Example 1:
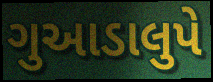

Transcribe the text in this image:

ગુઆડાલુપે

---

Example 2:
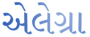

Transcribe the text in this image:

એલેગ્રા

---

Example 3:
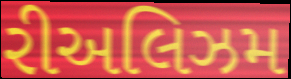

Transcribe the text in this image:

રીઅલિઝમ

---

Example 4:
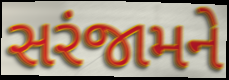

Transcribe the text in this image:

સરંજામને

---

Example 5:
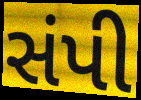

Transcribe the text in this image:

સંપી